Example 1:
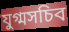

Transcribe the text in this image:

যুগ্মসচিব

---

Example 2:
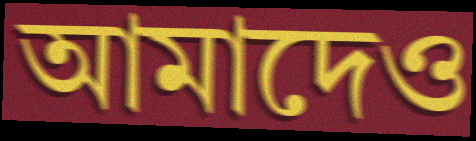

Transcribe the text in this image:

আমাদেও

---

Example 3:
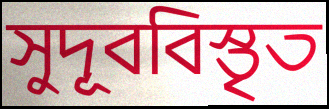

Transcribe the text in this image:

সুদূববিস্তৃত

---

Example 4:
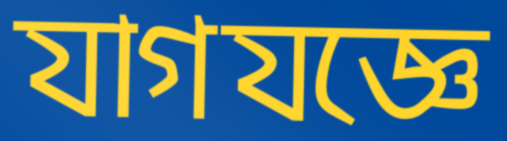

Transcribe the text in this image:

যাগযজ্ঞে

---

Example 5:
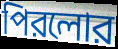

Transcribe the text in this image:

পিরলোর